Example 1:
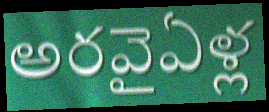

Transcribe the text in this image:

అరవైఏళ్ల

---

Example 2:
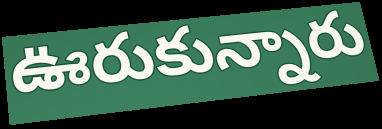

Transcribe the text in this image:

ఊరుకున్నారు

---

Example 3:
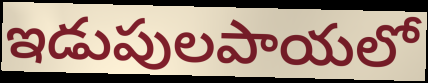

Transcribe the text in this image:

ఇడుపులపాయలో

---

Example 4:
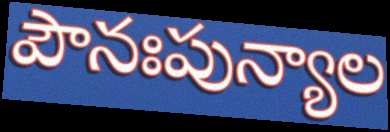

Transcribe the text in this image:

పౌనఃపున్యాల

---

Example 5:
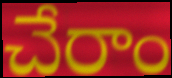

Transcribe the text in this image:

చేరాం